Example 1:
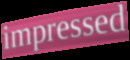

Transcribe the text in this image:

impressed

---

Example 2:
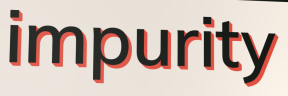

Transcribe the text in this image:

impurity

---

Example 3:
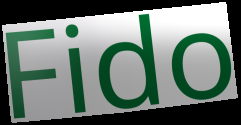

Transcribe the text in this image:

Fido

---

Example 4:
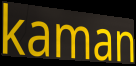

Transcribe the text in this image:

kaman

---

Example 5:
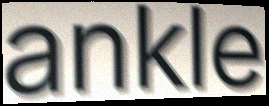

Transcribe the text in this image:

ankle